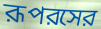
রূপরসের